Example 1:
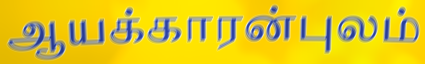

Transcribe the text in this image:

ஆயக்காரன்புலம்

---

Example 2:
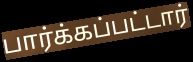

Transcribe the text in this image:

பார்க்கப்பட்டார்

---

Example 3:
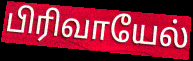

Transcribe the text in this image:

பிரிவாயேல்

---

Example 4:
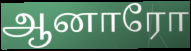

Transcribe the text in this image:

ஆனாரோ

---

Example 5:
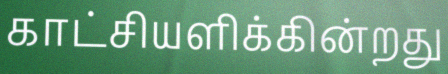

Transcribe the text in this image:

காட்சியளிக்கின்றது